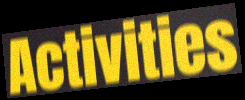
Activities